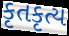
કૃતકૃત્ય